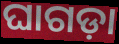
ଘାଗଡ଼ା